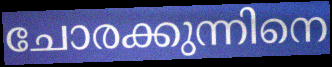
ചോരക്കുന്നിനെ